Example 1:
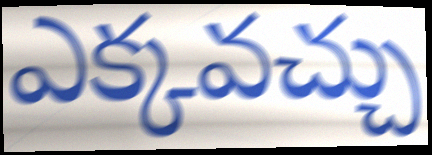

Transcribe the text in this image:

ఎక్కవచ్చు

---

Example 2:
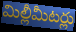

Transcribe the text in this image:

మిల్లీమీటర్లు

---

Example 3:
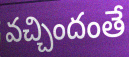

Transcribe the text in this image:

వచ్చిందంతే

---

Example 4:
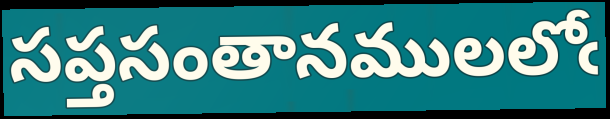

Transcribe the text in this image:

సప్తసంతానములలోఁ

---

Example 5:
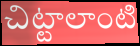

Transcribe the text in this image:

చిట్టాలాంటి